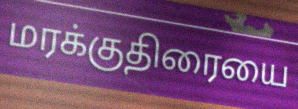
மரக்குதிரையை